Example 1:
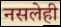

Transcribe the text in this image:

नसलेही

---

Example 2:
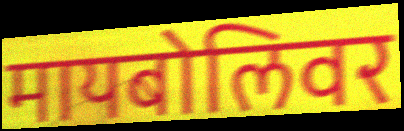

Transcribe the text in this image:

मायबोलिवर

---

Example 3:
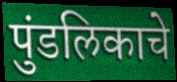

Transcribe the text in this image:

पुंडलिकाचे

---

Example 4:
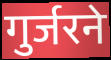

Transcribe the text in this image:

गुर्जरने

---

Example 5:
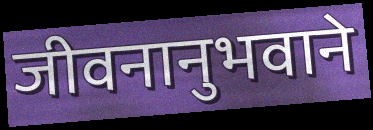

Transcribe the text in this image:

जीवनानुभवाने